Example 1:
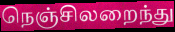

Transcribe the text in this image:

நெஞ்சிலறைந்து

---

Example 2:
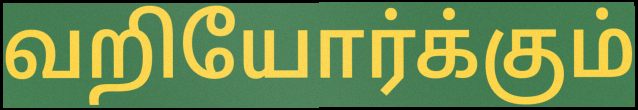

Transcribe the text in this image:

வறியோர்க்கும்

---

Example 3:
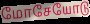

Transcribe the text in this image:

மோசேயோடு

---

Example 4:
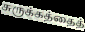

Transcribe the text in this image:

சுருக்கத்தைத்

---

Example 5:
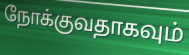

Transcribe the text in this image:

நோக்குவதாகவும்